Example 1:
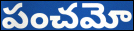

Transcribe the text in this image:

పంచమో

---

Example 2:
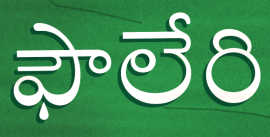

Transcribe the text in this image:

ఫౌలేరి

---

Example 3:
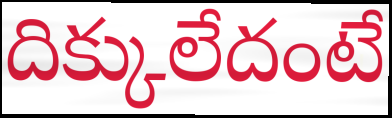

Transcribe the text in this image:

దిక్కులేదంటే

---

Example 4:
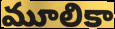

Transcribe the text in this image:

మూలికా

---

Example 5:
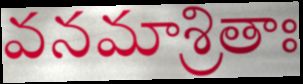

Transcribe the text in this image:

వనమాశ్రితాః